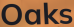
Oaks